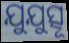
ଯୁଯୁତ୍ସୂ